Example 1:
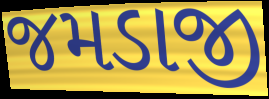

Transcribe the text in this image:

જમડાજી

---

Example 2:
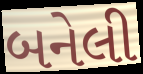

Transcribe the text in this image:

બનેલી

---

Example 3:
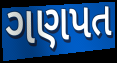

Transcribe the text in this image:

ગણપત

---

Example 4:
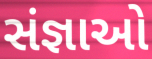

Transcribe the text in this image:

સંજ્ઞાઓ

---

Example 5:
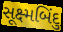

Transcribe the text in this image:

સૂક્ષ્મબિંદુ